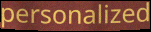
personalized